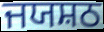
ਜਯਸ਼ਠ